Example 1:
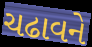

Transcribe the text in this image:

ચઢાવને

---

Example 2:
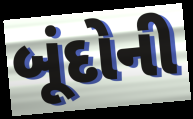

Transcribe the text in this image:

બૂંદોની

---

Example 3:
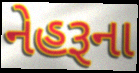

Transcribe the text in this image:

નેહરૂના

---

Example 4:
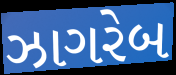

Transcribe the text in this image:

ઝાગરેબ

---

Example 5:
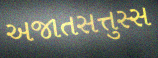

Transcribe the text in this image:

અજાતસત્તુસ્સ